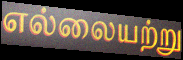
எல்லையற்று